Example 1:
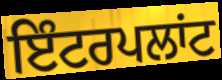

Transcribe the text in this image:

ਇੰਟਰਪਲਾਂਟ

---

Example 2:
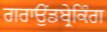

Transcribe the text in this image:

ਗਰਾਉਂਡਬ੍ਰੇਕਿੰਗ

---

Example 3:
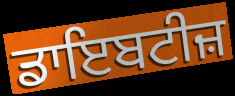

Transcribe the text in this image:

ਡਾਇਬਟੀਜ਼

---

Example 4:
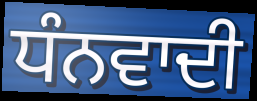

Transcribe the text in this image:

ਧੰਨਵਾਦੀ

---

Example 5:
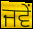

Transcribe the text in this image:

ਜਵੇਂ